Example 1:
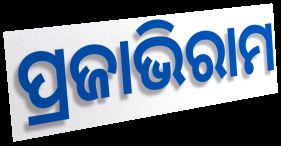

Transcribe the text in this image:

ପ୍ରଜାଭିରାମ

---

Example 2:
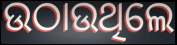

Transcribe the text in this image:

ଉଠାଉଥିଲେ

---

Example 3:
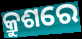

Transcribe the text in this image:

କ୍ରୁଶରେ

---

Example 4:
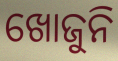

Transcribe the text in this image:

ଖୋଜୁନି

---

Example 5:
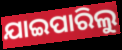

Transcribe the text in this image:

ଯାଇପାରିଲୁ